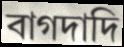
বাগদাদি